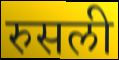
रुसली